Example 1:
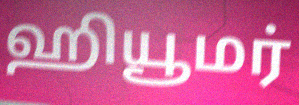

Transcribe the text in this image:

ஹியூமர்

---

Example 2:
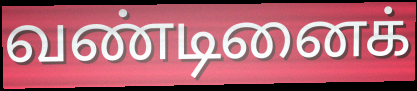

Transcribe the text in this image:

வண்டினைக்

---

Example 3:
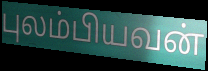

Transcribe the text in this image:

புலம்பியவன்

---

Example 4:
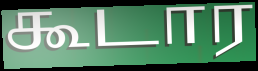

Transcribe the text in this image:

கூடார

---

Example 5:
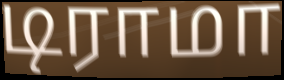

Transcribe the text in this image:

டிராமா